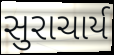
સુરાચાર્ય